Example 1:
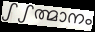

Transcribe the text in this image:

ഽഽത്മാനം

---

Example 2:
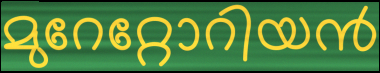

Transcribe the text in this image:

മുറേറ്റോറിയൻ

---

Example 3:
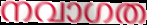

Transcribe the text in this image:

നവാഗത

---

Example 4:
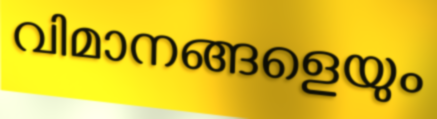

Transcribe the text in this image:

വിമാനങ്ങളെയും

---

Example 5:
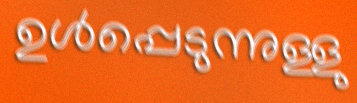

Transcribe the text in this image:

ഉൾപ്പെടുന്നുള്ളു